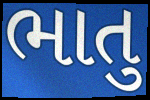
ભાતુ